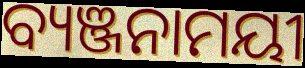
ବ୍ୟଞ୍ଜନାମୟୀ